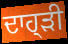
ਦਾਹ੍ੜੀ